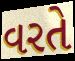
વરતે